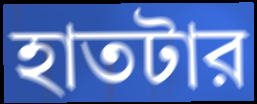
হাতটার